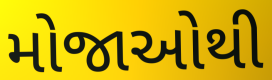
મોજાઓથી